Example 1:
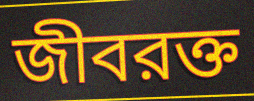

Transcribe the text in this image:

জীবরক্ত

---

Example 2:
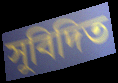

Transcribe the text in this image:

সুবিদিত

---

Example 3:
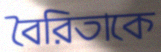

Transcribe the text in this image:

বৈরিতাকে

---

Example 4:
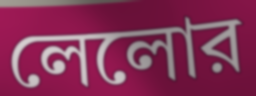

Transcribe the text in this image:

লেলোর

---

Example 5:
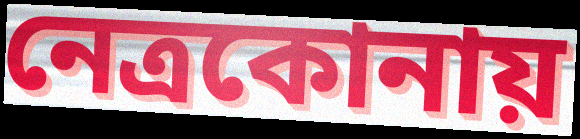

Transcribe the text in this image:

নেত্রকোনায়